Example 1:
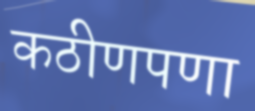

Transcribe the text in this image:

कठीणपणा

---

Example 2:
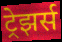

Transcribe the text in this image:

ट्रेझर्स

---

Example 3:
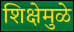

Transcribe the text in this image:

शिक्षेमुळे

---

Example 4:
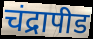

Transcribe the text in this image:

चंद्रापीड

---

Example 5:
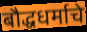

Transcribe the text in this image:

बौद्धधर्माचे